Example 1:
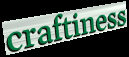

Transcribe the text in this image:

craftiness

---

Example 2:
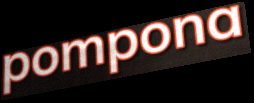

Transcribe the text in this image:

pompona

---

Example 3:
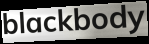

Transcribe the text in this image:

blackbody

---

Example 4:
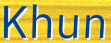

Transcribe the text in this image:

Khun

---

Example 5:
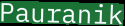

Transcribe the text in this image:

Pauranik